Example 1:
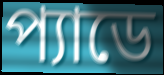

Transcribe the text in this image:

প্যাডে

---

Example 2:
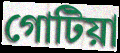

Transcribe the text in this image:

গোটিয়া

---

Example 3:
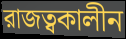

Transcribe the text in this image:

রাজত্বকালীন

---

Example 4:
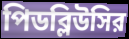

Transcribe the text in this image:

পিডব্লিউসির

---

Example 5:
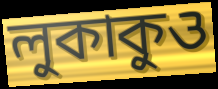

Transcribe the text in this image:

লুকাকুও